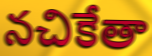
నచికేతా